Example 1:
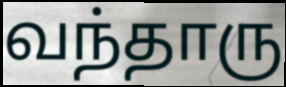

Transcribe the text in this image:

வந்தாரு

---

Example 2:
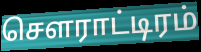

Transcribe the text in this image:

சௌராட்டிரம்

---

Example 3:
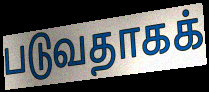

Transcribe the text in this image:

படுவதாகக்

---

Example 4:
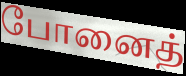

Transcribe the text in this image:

போனைத்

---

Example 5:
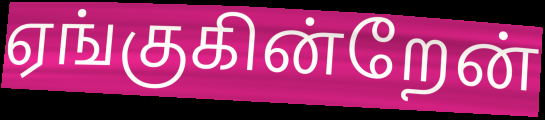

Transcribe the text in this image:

ஏங்குகின்றேன்